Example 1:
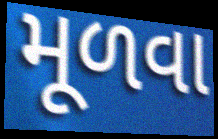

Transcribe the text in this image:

મૂળવા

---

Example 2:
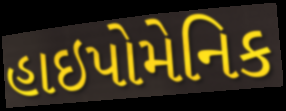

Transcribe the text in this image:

હાઇપોમેનિક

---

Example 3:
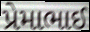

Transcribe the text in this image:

પ્રેમાભાઈ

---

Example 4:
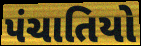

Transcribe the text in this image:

પંચાતિયો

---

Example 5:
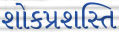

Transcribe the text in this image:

શોકપ્રશસ્તિ